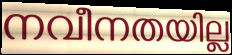
നവീനതയില്ല